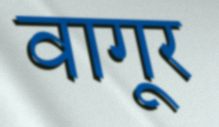
वागूर